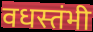
वधस्तंभी